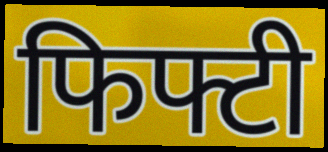
फिफ्टी